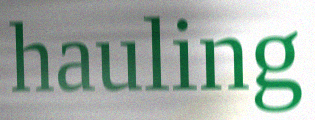
hauling